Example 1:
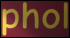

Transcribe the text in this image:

phol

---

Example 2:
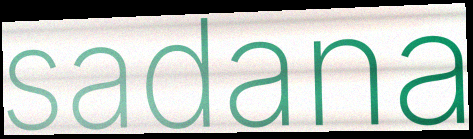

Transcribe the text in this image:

sadana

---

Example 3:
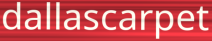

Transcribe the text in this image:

dallascarpet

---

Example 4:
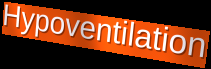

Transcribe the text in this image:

Hypoventilation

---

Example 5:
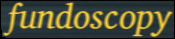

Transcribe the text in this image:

fundoscopy